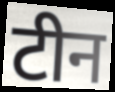
टीन